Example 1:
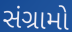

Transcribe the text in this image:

સંગ્રામો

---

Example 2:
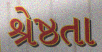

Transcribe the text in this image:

શ્રેષ્ઠતા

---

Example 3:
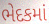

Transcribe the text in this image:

ભેદકમાં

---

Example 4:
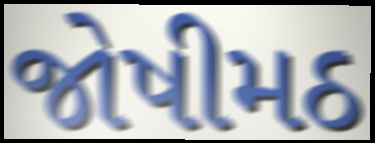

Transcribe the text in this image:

જોષીમઠ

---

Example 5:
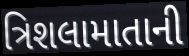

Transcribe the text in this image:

ત્રિશલામાતાની